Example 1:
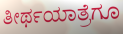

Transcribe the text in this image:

ತೀರ್ಥಯಾತ್ರೆಗೂ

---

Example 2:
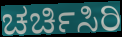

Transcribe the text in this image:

ಚರ್ಚಿಸಿರಿ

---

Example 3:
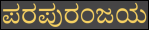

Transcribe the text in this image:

ಪರಪುರಂಜಯ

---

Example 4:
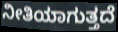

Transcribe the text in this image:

ನೀತಿಯಾಗುತ್ತದೆ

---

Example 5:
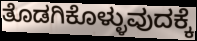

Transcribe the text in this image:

ತೊಡಗಿಕೊಳ್ಳುವುದಕ್ಕೆ